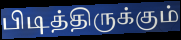
பிடித்திருக்கும்